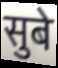
सुबे